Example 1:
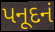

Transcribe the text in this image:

પનૂદનં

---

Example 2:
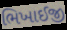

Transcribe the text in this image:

ભિખાઈજી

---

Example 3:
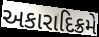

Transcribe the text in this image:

અકારાદિક્રમે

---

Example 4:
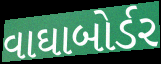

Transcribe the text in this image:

વાઘાબોર્ડર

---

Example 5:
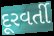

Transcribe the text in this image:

દૂરવર્તી